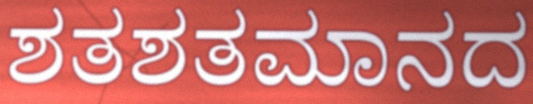
ಶತಶತಮಾನದ